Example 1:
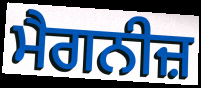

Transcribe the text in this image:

ਮੈਗਨੀਜ਼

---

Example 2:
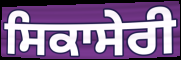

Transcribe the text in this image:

ਸਿਕਾਸੇਰੀ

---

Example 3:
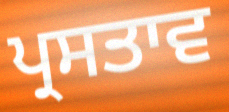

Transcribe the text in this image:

ਪ੍ਰਸਤਾਵ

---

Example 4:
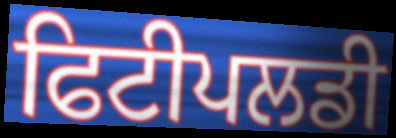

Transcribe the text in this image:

ਫਿਟੀਪਲਡੀ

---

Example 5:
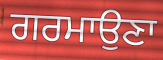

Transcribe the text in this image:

ਗਰਮਾਉਣਾ